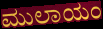
ಮುಲಾಯಂ